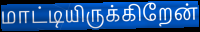
மாட்டியிருக்கிறேன்